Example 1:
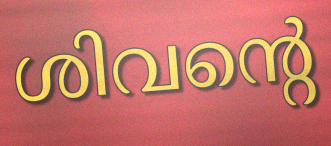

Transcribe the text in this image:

ശിവന്റെ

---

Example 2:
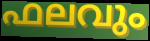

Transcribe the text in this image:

ഫലവും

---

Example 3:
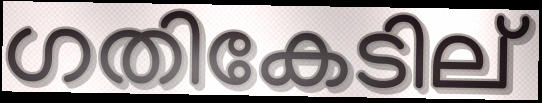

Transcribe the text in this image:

ഗതികേടില്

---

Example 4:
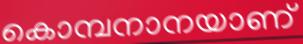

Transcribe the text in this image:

കൊമ്പനാനയാണ്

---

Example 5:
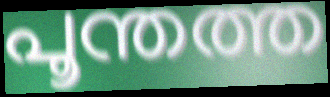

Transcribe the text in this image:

പൂന്തത്ത